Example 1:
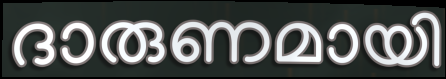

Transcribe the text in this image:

ദാരുണമായി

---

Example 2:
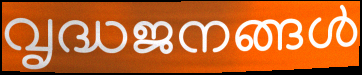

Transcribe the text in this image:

വൃദ്ധജനങ്ങൾ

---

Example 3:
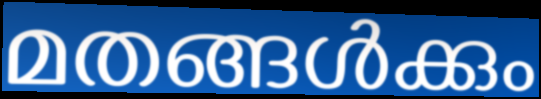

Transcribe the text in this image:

മതങ്ങൾക്കും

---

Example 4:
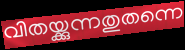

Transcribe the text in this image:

വിതയ്ക്കുന്നതുതന്നെ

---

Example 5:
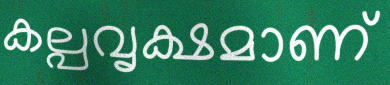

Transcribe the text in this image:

കല്പവൃക്ഷമാണ്